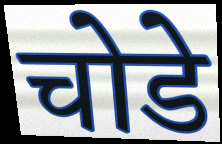
चोडे